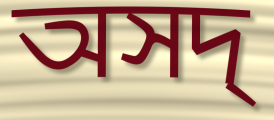
অসদ্